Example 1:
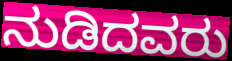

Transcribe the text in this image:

ನುಡಿದವರು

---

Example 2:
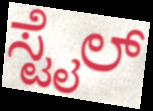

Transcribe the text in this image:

ಸ್ಟೈಲ್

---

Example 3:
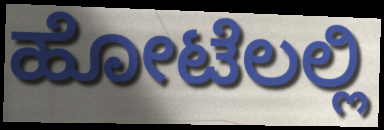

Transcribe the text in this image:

ಹೋಟೆಲಲ್ಲಿ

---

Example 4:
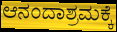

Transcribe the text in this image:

ಆನಂದಾಶ್ರಮಕ್ಕೆ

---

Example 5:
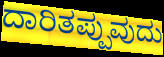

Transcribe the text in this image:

ದಾರಿತಪ್ಪುವುದು